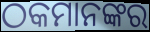
ଠକମାନଙ୍କର